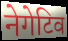
नेगेटिव